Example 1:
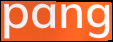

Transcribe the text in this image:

pang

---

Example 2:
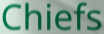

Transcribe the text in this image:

Chiefs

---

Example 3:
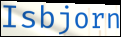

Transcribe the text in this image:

Isbjorn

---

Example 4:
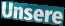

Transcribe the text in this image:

Unsere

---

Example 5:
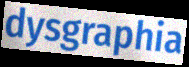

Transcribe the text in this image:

dysgraphia